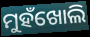
ମୁହଁଖୋଲି